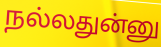
நல்லதுன்னு